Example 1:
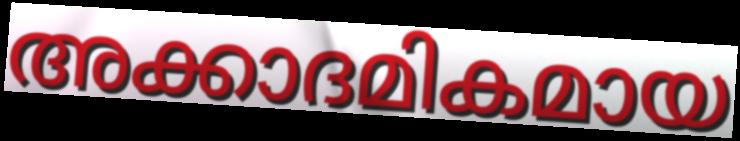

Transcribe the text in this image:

അക്കാദമികമായ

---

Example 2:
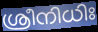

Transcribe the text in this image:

ശ്രീനിധിഃ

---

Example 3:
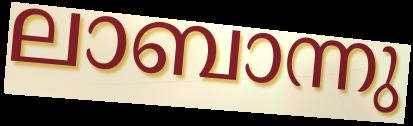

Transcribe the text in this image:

ലാബാന്നു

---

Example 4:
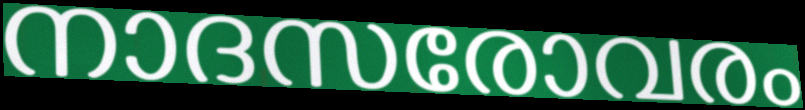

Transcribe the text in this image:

നാദസരോവരം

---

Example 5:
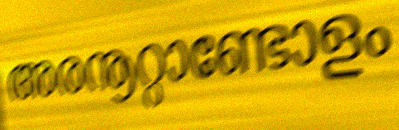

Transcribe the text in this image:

അരനൂറ്റാണ്ടോളം